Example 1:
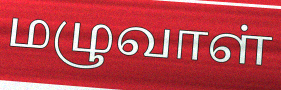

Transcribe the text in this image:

மழுவாள்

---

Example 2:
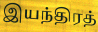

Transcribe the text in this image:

இயந்திரத்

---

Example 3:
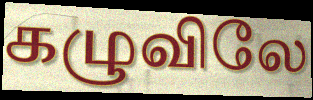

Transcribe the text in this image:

கழுவிலே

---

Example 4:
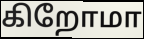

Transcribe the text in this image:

கிறோமா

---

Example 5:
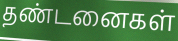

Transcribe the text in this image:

தண்டனைகள்